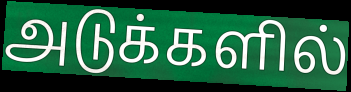
அடுக்களில்